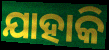
ଯାହାକି